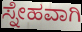
ಸ್ನೇಹವಾಗಿ